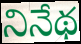
నినేథ